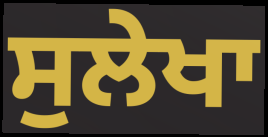
ਸੁਲੇਖਾ